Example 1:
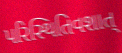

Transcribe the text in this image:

પરિસ્થિતિવશાત્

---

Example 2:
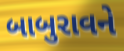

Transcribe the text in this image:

બાબુરાવને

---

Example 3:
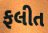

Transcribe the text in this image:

ફલીત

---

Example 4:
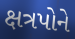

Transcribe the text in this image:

ક્ષત્રપોને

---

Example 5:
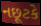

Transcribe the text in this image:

નછૂટકે